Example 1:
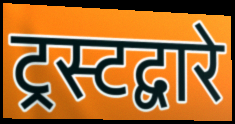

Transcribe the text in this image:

ट्रस्टद्वारे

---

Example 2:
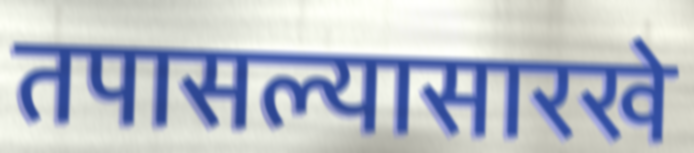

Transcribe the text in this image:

तपासल्यासारखे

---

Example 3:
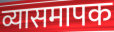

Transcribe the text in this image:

व्यासमापक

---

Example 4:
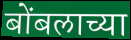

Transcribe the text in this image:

बोंबलाच्या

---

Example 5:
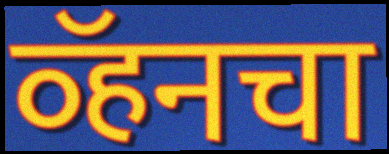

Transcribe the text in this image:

व्हॅनचा